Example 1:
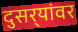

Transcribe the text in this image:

दुसर्‍यांवर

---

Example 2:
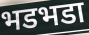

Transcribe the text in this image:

भडभडा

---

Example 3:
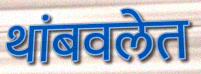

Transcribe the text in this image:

थांबवलेत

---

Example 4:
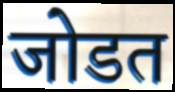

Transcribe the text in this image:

जोडत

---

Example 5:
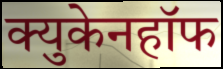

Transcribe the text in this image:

क्युकेनहॉफ